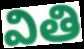
వితి